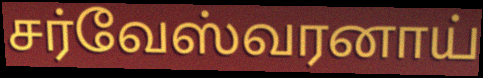
சர்வேஸ்வரனாய்